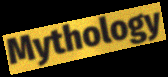
Mythology